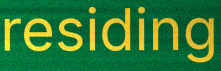
residing